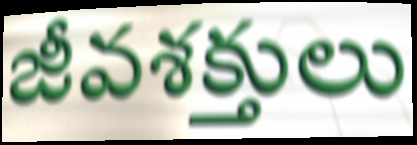
జీవశక్తులు